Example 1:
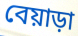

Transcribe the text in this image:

বেয়াড়া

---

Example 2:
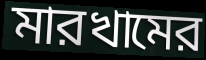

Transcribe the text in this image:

মারখামের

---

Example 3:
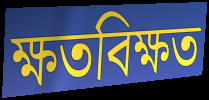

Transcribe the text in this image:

ক্ষতবিক্ষত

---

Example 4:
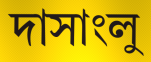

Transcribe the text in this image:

দাসাংলু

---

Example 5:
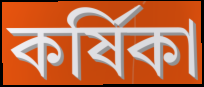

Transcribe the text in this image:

কর্ষিকা